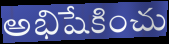
అభిషేకించు